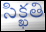
సిక్ఖతి